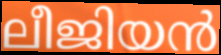
ലീജിയൻ